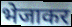
भेजाकर